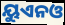
ୟୁଏନଓ